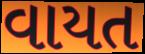
વાયત